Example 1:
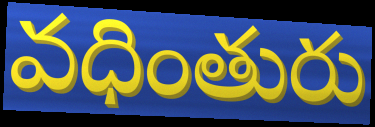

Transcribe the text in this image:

వధింతురు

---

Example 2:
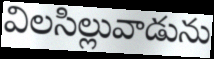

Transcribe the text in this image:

విలసిల్లువాడును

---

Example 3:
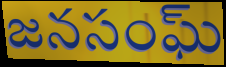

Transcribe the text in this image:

జనసంఘ్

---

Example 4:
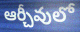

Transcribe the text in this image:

ఆర్చీవులో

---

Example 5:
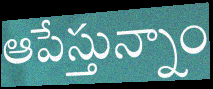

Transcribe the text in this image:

ఆపేస్తున్నాం